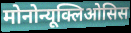
मोनोन्यूक्लिओसिस